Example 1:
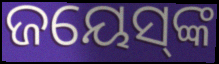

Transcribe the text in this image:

ଜୟେସ୍‌ଙ୍କ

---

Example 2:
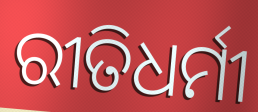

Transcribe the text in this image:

ରୀତିଧର୍ମୀ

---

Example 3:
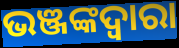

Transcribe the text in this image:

ଭଞ୍ଜଙ୍କଦ୍ୱାରା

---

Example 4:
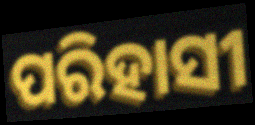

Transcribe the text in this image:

ପରିହାସୀ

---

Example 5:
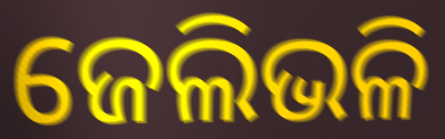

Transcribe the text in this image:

ଜେଲିଭଳି